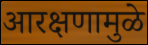
आरक्षणामुळे